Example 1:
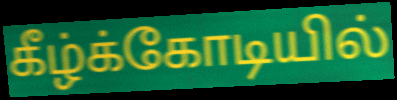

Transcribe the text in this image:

கீழ்க்கோடியில்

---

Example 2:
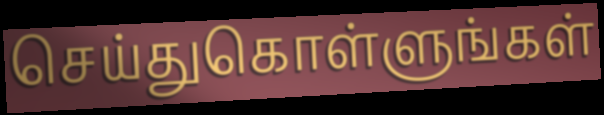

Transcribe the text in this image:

செய்துகொள்ளுங்கள்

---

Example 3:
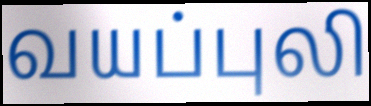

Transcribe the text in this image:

வயப்புலி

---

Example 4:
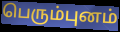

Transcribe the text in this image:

பெரும்புனம்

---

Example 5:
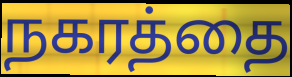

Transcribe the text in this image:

நகரத்தை